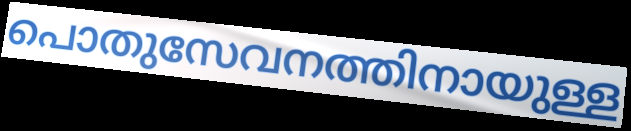
പൊതുസേവനത്തിനായുള്ള